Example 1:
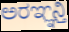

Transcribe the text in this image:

ಅರಞ್ಞನ್ತಿ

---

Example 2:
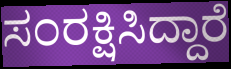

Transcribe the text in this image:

ಸಂರಕ್ಷಿಸಿದ್ದಾರೆ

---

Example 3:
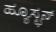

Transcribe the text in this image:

ಹ್ಯೂಸ್ಟನ್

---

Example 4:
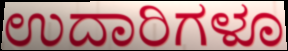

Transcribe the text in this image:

ಉದಾರಿಗಳೂ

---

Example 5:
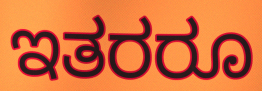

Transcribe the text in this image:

ಇತರರೂ